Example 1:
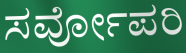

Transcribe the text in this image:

ಸರ್ವೋಪರಿ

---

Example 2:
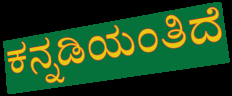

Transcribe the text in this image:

ಕನ್ನಡಿಯಂತಿದೆ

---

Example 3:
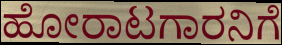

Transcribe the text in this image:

ಹೋರಾಟಗಾರನಿಗೆ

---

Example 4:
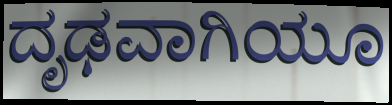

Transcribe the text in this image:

ದೃಢವಾಗಿಯೂ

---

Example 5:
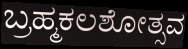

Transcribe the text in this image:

ಬ್ರಹ್ಮಕಲಶೋತ್ಸವ